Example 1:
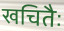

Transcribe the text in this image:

खचितैः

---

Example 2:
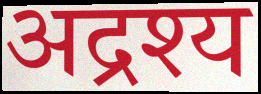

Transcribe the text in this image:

अद्रश्य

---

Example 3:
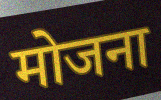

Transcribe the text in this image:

मोजना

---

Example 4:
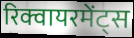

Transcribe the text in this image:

रिक्वायरमेंट्स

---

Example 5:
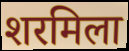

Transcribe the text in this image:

शरमिला